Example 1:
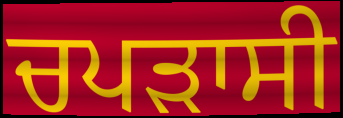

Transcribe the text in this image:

ਚਪੜਾਸੀ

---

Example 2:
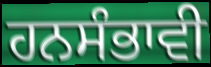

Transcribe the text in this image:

ਹਨਸੰਭਾਵੀ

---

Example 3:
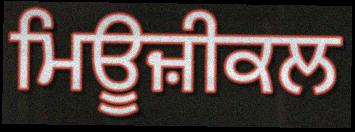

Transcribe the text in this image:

ਮਿਊਜ਼ੀਕਲ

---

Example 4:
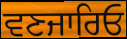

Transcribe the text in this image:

ਵਣਜਾਰਿਓ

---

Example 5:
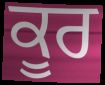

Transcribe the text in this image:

ਕੂਰ